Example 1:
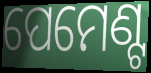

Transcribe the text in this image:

ପେମେଣ୍ଟ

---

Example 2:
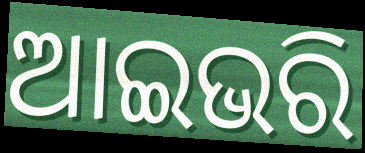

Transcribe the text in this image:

ଆଇଭରି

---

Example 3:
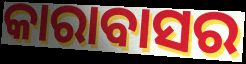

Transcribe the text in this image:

କାରାବାସର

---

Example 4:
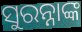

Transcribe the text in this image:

ସୁରନ୍ନାଙ୍କ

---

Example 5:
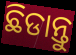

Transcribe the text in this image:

ଛିଡାନ୍ତୁ